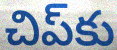
చిప్‌కు